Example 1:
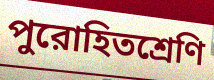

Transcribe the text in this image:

পুরোহিতশ্রেণি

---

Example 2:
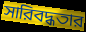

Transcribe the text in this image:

সারিবদ্ধতার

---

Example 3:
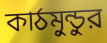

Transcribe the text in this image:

কাঠমুন্ডুর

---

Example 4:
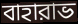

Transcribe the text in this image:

বাহারাভ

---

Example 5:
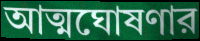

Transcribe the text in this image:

আত্মঘোষণার